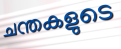
ചന്തകളുടെ